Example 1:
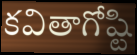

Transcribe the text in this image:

కవితాగోష్టి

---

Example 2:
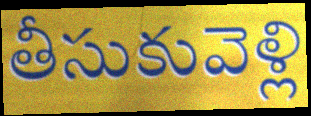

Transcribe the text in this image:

తీసుకువెళ్లి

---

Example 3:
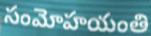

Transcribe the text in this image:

సంమోహయంతి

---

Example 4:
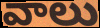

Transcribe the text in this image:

వాలు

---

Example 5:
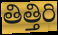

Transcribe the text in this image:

తిత్తిరి